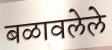
बळावलेले